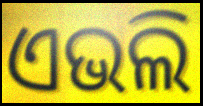
ଏଭଲି